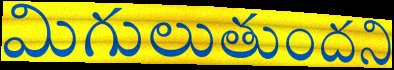
మిగులుతుందని